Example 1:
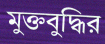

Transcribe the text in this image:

মুক্তবুদ্ধির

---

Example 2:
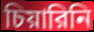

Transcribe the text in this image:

চিয়ারিনি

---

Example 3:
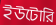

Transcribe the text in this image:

ইউটোরি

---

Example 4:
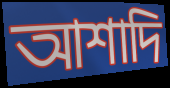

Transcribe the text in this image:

আশাদি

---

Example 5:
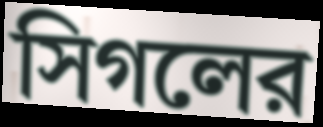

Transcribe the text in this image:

সিগলের